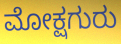
ಮೋಕ್ಷಗುರು